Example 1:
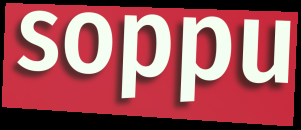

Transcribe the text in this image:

soppu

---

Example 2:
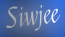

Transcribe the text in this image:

Siwjee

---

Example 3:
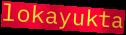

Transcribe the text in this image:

lokayukta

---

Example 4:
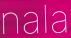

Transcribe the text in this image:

nala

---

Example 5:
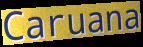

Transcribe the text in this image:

Caruana